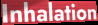
Inhalation